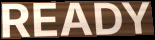
READY